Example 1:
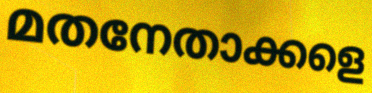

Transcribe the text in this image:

മതനേതാക്കളെ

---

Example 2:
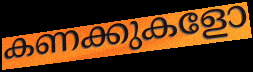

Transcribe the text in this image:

കണക്കുകളോ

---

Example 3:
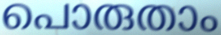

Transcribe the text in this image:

പൊരുതാം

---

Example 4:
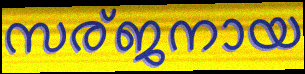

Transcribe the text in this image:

സര്ജനായ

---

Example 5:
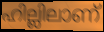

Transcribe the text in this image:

ഹില്ലിലാണ്